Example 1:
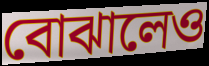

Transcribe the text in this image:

বোঝালেও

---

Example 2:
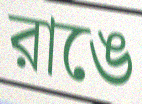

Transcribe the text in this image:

রাঙে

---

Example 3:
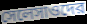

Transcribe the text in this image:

সেলেসাওদের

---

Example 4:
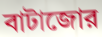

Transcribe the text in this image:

বাটাজোর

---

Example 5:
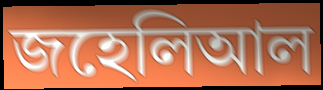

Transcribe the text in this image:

জহেলিআল